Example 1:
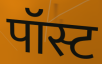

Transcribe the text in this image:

पॉस्ट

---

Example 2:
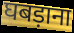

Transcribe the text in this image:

घबड़ाना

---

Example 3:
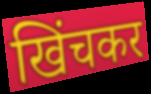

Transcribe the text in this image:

खिंचकर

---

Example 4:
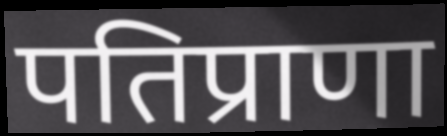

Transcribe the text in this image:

पतिप्राणा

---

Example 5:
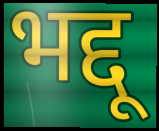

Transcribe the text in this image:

भद्दू